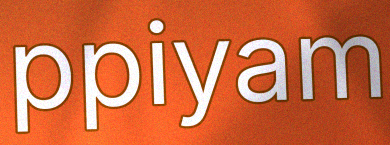
ppiyam